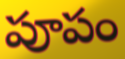
పూపం